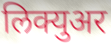
लिक्युअर